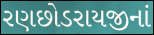
રણછોડરાયજીનાં